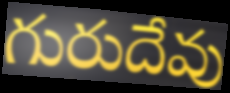
గురుదేవు